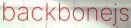
backbonejs